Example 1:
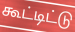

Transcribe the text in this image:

கூட்டிட்டு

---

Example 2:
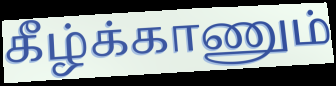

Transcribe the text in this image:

கீழ்க்காணும்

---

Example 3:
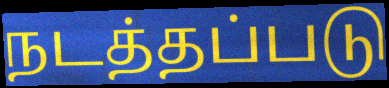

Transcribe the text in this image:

நடத்தப்படு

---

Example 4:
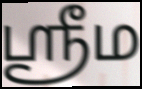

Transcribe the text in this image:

ஶ்ரீம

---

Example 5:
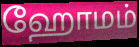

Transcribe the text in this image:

ஹோமம்